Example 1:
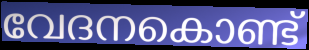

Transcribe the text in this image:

വേദനകൊണ്ട്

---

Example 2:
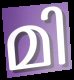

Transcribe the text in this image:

മി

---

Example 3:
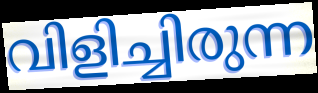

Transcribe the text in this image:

വിളിച്ചിരുന്ന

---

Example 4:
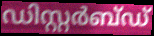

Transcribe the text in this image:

ഡിസ്റ്റർബ്ഡ്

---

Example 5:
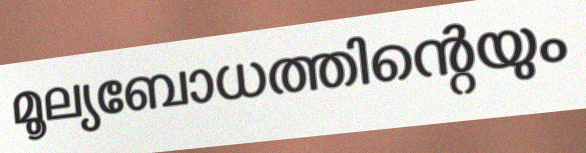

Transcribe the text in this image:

മൂല്യബോധത്തിന്റെയും